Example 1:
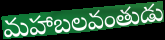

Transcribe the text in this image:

మహాబలవంతుడు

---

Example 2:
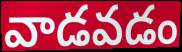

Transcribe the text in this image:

వాడవడం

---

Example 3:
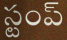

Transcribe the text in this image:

స్టంప్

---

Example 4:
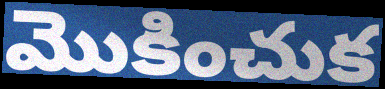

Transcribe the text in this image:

మొకించుక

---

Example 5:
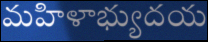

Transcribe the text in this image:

మహిళాభ్యుదయ